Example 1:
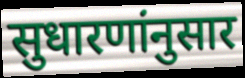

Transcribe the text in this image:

सुधारणांनुसार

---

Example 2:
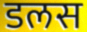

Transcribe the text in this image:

डलस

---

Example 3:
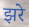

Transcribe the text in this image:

झरे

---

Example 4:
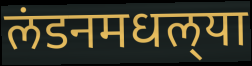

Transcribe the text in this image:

लंडनमधल्या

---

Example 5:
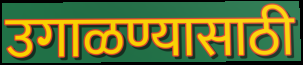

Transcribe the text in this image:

उगाळण्यासाठी